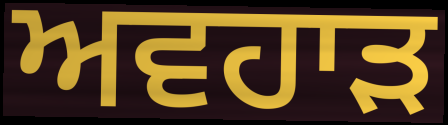
ਅਵਹਾੜ